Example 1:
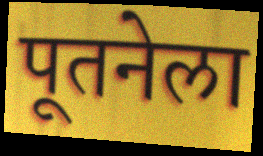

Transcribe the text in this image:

पूतनेला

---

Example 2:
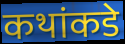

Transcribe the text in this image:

कथांकडे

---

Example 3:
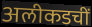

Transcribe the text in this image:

अलीकडचीं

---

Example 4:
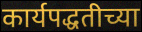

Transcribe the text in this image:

कार्यपद्धतीच्या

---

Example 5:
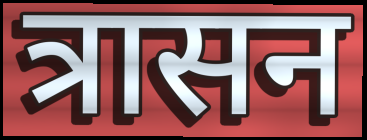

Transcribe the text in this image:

त्रासन